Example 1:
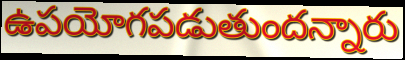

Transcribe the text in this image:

ఉపయోగపడుతుందన్నారు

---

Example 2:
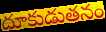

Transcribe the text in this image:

దూకుడుతనం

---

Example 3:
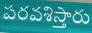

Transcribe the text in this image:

పరవశిస్తారు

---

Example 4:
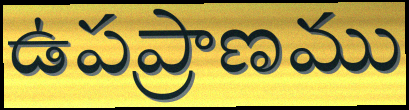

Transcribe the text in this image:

ఉపప్రాణము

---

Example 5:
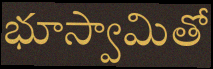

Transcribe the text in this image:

భూస్వామితో